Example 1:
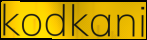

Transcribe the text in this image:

kodkani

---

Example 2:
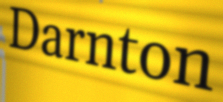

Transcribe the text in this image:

Darnton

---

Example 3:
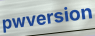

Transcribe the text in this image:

pwversion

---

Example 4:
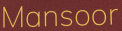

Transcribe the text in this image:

Mansoor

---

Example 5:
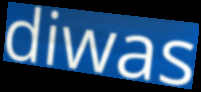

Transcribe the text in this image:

diwas